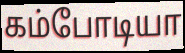
கம்போடியா